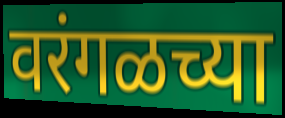
वरंगळच्या